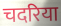
चदरिया